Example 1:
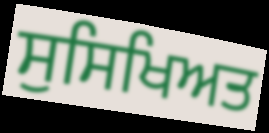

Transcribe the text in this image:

ਸੁਸਿਖਿਅਤ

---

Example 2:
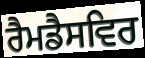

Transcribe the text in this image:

ਰੈਮਡੈਸਵਿਰ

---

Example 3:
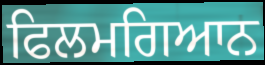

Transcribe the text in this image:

ਫਿਲਮਗਿਆਨ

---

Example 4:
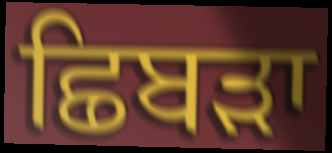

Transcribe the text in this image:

ਛਿਬੜਾ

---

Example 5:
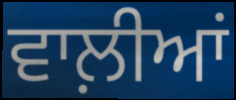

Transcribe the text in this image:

ਵਾਲ਼ੀਆਂ